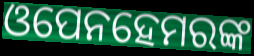
ଓପେନହେମରଙ୍କ